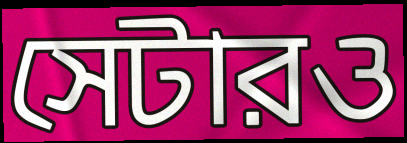
সেটারও